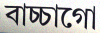
বাচ্চাগো